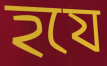
হযে